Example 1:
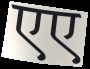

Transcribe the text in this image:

एए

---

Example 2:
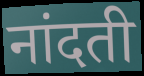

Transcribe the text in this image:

नांदती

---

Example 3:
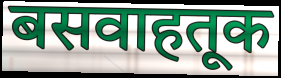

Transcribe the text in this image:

बसवाहतूक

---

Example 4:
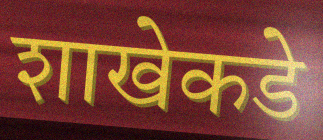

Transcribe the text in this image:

शाखेकडे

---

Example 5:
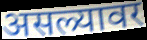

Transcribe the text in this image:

असल्यावर